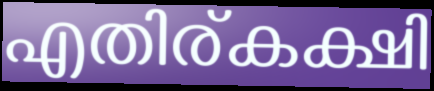
എതിര്കക്ഷി